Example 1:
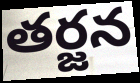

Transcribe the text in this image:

తర్జన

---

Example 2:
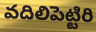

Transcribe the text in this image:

వదిలిపెట్టిరి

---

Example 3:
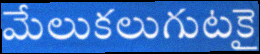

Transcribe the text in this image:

మేలుకలుగుటకై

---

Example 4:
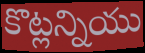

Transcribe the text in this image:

కొట్లన్నియు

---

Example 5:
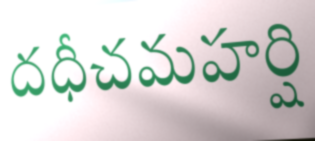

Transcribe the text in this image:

దధీచమహర్షి